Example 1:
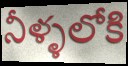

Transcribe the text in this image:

నీళ్ళలోకి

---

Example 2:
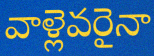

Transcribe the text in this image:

వాళ్లెవరైనా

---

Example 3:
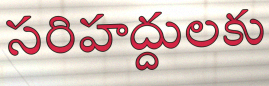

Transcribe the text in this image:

సరిహద్దులకు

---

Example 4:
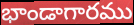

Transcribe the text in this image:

భాండాగారము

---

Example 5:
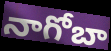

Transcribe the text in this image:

నాగోబా